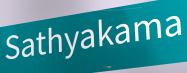
Sathyakama